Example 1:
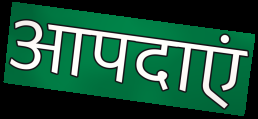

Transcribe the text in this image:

आपदाएं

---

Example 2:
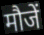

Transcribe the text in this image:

मौजें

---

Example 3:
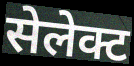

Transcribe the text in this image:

सेलेक्ट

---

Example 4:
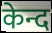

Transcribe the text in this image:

केन्द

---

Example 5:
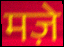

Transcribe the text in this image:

मज़े